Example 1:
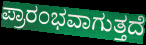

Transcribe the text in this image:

ಪ್ರಾರಂಭವಾಗುತ್ತದೆ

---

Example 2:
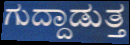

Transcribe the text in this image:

ಗುದ್ದಾಡುತ್ತ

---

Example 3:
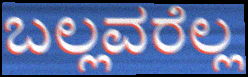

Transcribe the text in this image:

ಬಲ್ಲವರೆಲ್ಲ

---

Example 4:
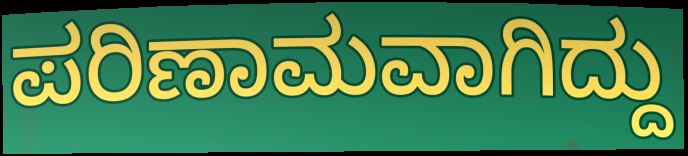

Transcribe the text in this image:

ಪರಿಣಾಮವಾಗಿದ್ದು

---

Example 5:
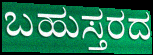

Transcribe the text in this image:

ಬಹುಸ್ತರದ